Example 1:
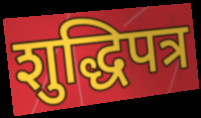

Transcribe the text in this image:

शुद्धिपत्र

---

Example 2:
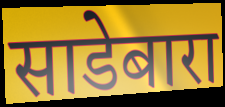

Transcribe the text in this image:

साडेबारा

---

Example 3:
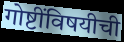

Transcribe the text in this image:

गोष्टींविषयीची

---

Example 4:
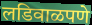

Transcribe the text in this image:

लडिवाळपणे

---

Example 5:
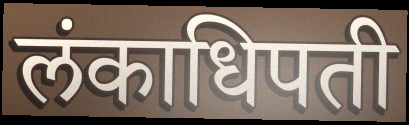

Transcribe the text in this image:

लंकाधिपती